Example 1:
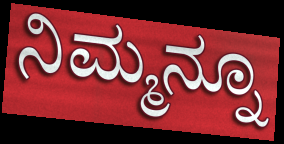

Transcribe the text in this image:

ನಿಮ್ಮನ್ನೂ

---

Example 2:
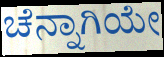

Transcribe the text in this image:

ಚೆನ್ನಾಗಿಯೇ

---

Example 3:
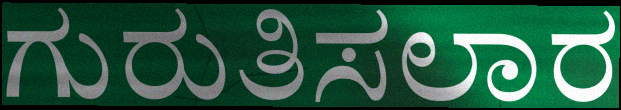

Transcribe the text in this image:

ಗುರುತಿಸಲಾರ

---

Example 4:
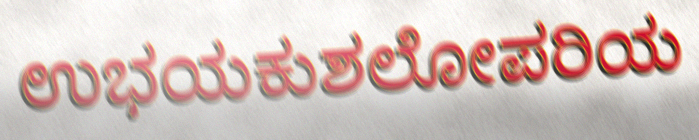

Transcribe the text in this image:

ಉಭಯಕುಶಲೋಪರಿಯ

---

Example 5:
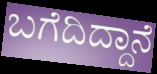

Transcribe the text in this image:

ಬಗೆದಿದ್ದಾನೆ